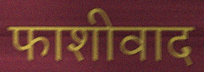
फाशीवाद